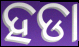
ହଡା